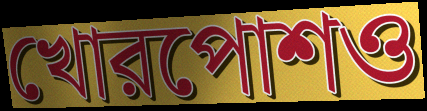
খোরপোশও